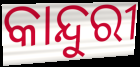
କାନ୍ଦୁରୀ